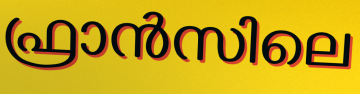
ഫ്രാൻസിലെ